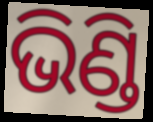
ଭିଣ୍ଡି